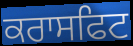
ਕਰਾਸਫਿਟ